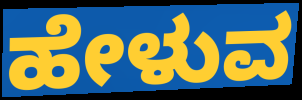
ಹೇಳುವ